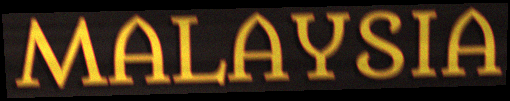
MALAYSIA